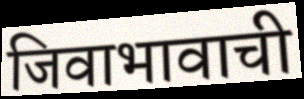
जिवाभावाची